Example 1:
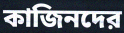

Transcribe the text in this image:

কাজিনদের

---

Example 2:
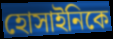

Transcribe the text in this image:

হোসাইনিকে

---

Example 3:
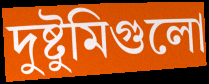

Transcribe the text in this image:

দুষ্টুমিগুলো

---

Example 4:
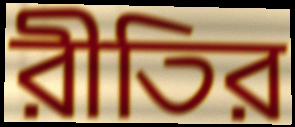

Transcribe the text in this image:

রীতির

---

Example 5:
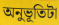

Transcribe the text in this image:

অনুভূতিটা